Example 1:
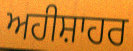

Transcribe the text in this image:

ਅਹੀਸ਼ਾਹਰ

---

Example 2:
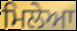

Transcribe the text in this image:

ਮਿਲੇਆ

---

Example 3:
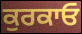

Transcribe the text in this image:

ਕੁਰਕਾਓ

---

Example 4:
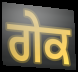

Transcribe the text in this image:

ਗੇਕ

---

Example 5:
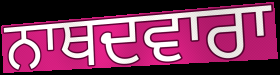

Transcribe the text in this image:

ਨਾਥਦਵਾਰਾ